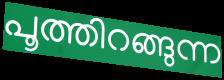
പൂത്തിറങ്ങുന്ന